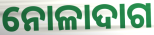
ନୋଳାଦାଗ